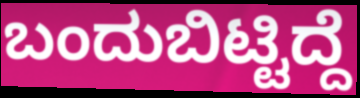
ಬಂದುಬಿಟ್ಟಿದ್ದೆ